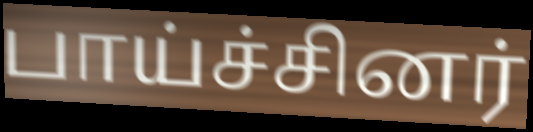
பாய்ச்சினர்